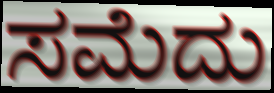
ಸಮೆದು